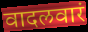
वादलवारं